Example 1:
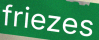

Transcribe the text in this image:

friezes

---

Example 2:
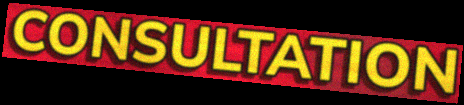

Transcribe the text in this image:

CONSULTATION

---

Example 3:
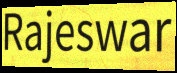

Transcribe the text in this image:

Rajeswar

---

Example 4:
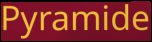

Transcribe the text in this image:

Pyramide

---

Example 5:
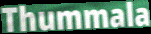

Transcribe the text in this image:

Thummala